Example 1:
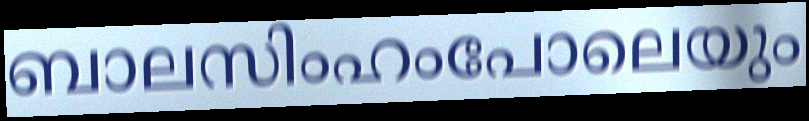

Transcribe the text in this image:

ബാലസിംഹംപോലെയും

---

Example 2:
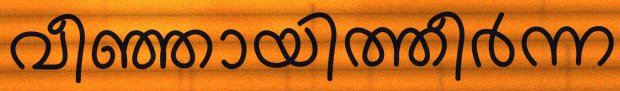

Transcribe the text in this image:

വീഞ്ഞായിത്തീർന്ന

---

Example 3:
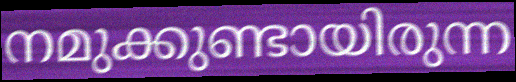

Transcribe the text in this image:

നമുക്കുണ്ടായിരുന്ന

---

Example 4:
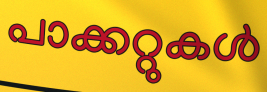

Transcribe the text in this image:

പാക്കറ്റുകൾ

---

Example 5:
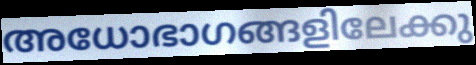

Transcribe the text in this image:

അധോഭാഗങ്ങളിലേക്കു